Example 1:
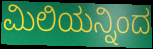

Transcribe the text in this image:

ಮಿಲಿಯನ್ನಿಂದ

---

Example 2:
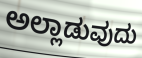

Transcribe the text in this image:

ಅಲ್ಲಾಡುವುದು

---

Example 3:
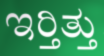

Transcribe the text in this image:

ಇರ್‍ತಿತ್ತು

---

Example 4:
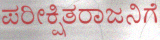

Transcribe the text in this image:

ಪರೀಕ್ಷಿತರಾಜನಿಗೆ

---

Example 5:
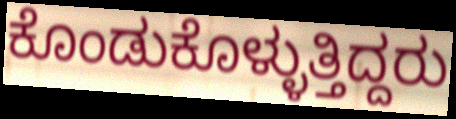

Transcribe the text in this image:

ಕೊಂಡುಕೊಳ್ಳುತ್ತಿದ್ದರು